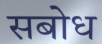
सबोध